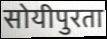
सोयीपुरता